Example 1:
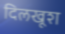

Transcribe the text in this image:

दिलखूश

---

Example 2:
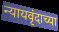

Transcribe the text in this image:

न्यायवृंदाच्या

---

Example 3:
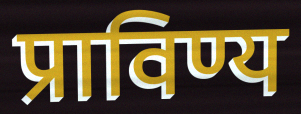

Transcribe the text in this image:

प्राविण्य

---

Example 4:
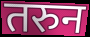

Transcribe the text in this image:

तरुन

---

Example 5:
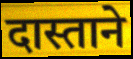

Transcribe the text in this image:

दास्ताने